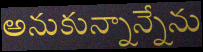
అనుకున్నాన్నేను